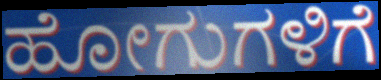
ಹೋಗುಗಳಿಗೆ